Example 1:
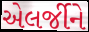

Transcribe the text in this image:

એલર્જીને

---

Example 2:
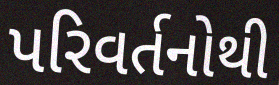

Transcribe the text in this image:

પરિવર્તનોથી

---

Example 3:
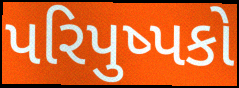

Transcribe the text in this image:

પરિપુષ્પકો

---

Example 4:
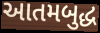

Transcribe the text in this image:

આતમબુદ્ધ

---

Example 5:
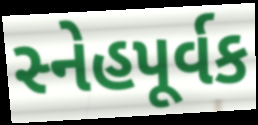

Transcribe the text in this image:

સ્નેહપૂર્વક